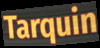
Tarquin